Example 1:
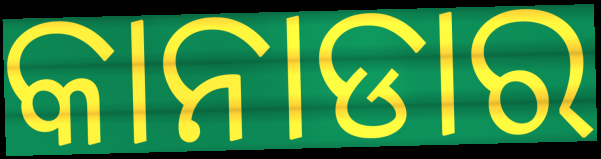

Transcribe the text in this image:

କାନାଡାର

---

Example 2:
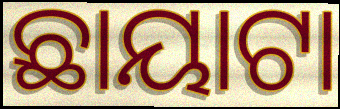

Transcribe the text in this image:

ଛାୟାଟା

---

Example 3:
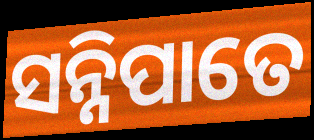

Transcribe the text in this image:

ସନ୍ନିପାତେ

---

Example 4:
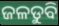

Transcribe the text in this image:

ଜଳଡୁବି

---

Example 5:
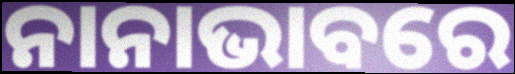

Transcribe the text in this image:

ନାନାଭାବରେ